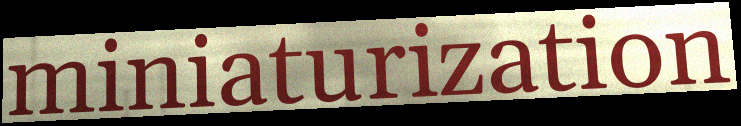
miniaturization